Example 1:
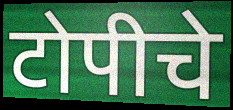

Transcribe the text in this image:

टोपीचे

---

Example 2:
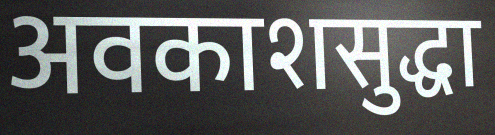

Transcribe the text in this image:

अवकाशसुद्धा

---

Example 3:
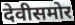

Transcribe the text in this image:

देवीसमोर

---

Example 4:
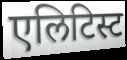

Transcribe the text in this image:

एलिटिस्ट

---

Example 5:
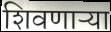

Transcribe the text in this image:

शिवणाऱ्या